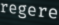
regere